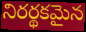
నిరర్థకమైన